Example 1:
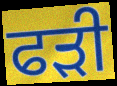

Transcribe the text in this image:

ਫੜੀ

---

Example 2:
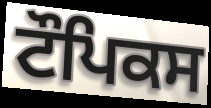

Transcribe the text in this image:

ਟੌਪਿਕਸ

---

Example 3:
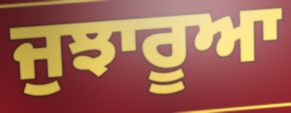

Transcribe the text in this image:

ਜੁਝਾਰੂਆ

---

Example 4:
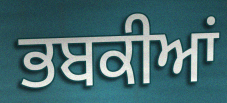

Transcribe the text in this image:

ਭਬਕੀਆਂ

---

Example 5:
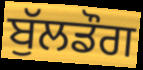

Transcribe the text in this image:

ਬੁੱਲਡੌਗ